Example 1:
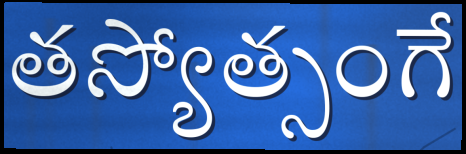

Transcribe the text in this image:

తస్యోత్సంగే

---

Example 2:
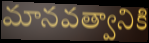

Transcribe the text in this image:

మానవత్వానికి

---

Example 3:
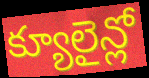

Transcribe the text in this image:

క్యూలైన్లో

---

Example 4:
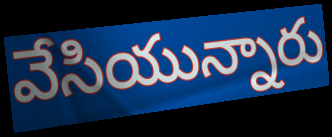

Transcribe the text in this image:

వేసియున్నారు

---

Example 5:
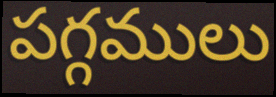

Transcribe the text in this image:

పగ్గములు